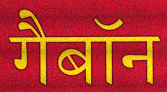
गैबॉन